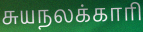
சுயநலக்காரி